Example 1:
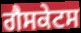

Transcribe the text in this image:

ਗੈਸਕੇਟਸ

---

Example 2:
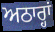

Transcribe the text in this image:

ਅਠਾਰ੍ਹਾਂ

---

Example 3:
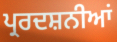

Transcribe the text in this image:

ਪ੍ਰਰਦਸ਼ਨੀਆਂ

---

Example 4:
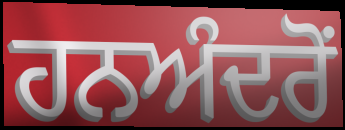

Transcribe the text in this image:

ਹਨਅੰਦਰੋਂ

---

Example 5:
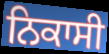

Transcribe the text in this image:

ਨਿਕਾਸੀ